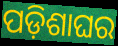
ପଡ଼ିଶାଘର